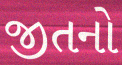
જીતનો